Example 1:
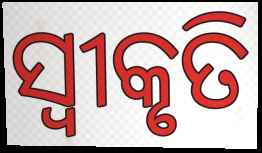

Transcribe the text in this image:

ସ୍ୱୀକୃତି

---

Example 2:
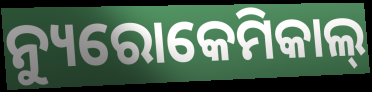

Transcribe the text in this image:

ନ୍ୟୁରୋକେମିକାଲ୍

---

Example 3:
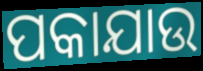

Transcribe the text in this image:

ପକାଯାଉ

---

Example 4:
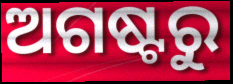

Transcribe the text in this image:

ଅଗଷ୍ଟରୁ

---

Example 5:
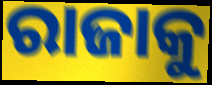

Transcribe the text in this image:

ରାଜାକୁ